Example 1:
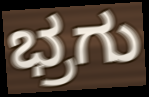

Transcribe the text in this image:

ಭ್ರಗು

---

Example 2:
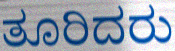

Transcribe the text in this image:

ತೂರಿದರು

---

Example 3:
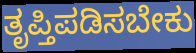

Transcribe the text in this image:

ತೃಪ್ತಿಪಡಿಸಬೇಕು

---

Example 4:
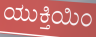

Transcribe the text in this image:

ಯುಕ್ತಿಯಿಂ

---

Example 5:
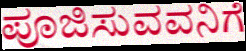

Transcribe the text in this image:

ಪೂಜಿಸುವವನಿಗೆ